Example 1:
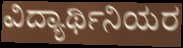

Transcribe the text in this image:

ವಿದ್ಯಾರ್ಥಿನಿಯರ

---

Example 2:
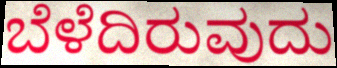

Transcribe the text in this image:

ಬೆಳೆದಿರುವುದು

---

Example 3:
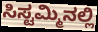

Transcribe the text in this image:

ಸಿಸ್ಟಮ್ಮಿನಲ್ಲಿ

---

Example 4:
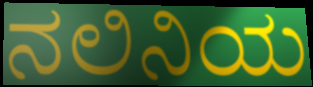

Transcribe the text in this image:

ನಲಿನಿಯ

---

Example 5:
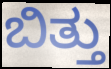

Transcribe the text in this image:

ಬಿತ್ತು